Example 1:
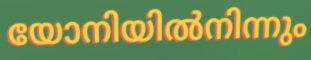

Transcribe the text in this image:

യോനിയിൽനിന്നും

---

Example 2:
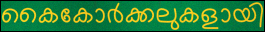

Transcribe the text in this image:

കൈകോർക്കലുകളായി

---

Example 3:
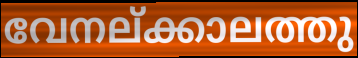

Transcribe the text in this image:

വേനല്ക്കാലത്തു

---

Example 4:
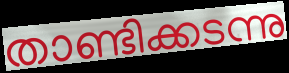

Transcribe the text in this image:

താണ്ടിക്കടന്നു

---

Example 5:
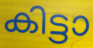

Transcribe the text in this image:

കിട്ടാ